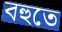
বহুতে